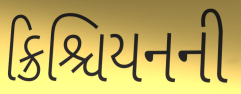
ક્રિશ્ચિયનની